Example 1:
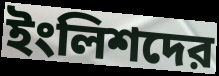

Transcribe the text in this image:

ইংলিশদের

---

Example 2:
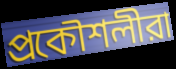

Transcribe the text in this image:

প্রকৌশলীরা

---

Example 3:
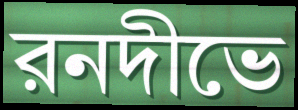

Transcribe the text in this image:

রনদীভে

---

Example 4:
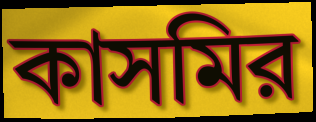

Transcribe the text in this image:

কাসমির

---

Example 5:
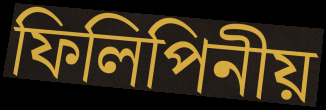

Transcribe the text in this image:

ফিলিপিনীয়